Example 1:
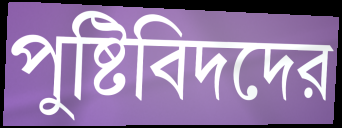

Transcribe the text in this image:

পুষ্টিবিদদের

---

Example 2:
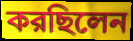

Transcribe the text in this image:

করছিলেন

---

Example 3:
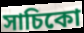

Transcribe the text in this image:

সাচিকো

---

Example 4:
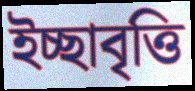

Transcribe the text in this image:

ইচ্ছাবৃত্তি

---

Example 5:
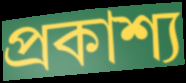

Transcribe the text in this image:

প্রকাশ্য